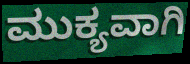
ಮುಕ್ಯವಾಗಿ